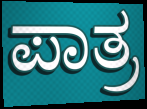
ಪಾತ್ರ